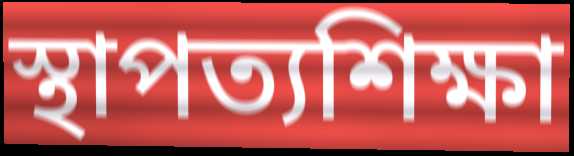
স্থাপত্যশিক্ষা